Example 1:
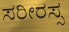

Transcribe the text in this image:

ಸರೀರಸ್ಸ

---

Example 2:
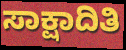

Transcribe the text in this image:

ಸಾಕ್ಷಾದಿತಿ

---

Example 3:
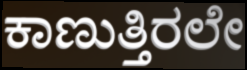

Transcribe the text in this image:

ಕಾಣುತ್ತಿರಲೇ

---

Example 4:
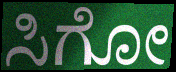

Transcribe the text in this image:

ಸಿಗೋ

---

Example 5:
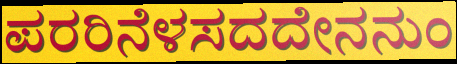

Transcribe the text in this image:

ಪರರಿನೆಳಸದದೇನನುಂ